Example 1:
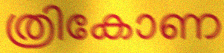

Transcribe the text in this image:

ത്രികോണ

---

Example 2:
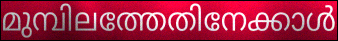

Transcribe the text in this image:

മുമ്പിലത്തേതിനേക്കാൾ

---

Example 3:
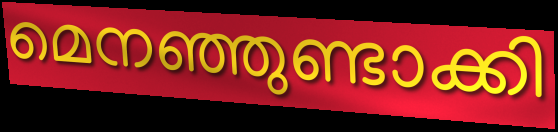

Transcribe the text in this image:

മെനഞ്ഞുണ്ടാക്കി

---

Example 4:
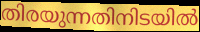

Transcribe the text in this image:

തിരയുന്നതിനിടയിൽ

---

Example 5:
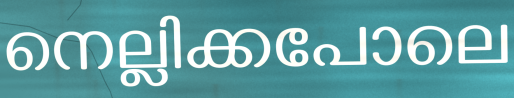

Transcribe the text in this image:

നെല്ലിക്കപോലെ